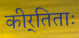
कीर्तिताः